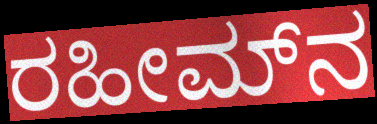
ರಹೀಮ್‌ನ